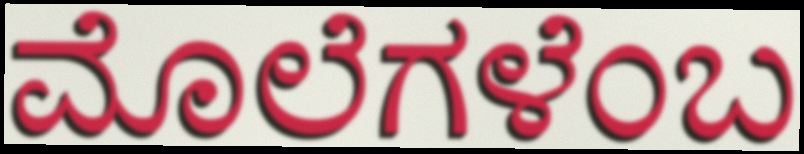
ಮೊಲೆಗಳೆಂಬ